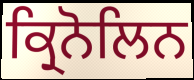
ਕ੍ਰਿਨੋਲਿਨ